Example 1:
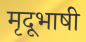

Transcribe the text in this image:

मृदूभाषी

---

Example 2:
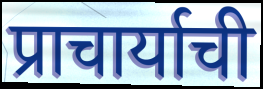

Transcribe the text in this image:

प्राचार्याची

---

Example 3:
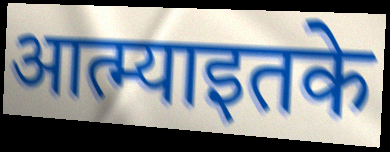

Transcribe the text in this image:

आत्म्याइतके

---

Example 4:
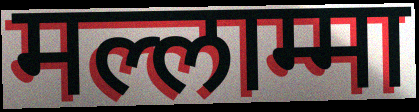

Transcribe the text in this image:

मल्लाम्मा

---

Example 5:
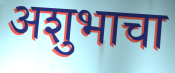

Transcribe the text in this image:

अशुभाचा